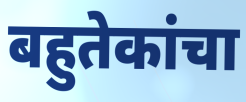
बहुतेकांचा